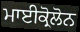
ਮਾਈਕ੍ਰੋਲੋਨ